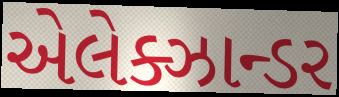
એલેક્ઝાન્ડર